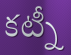
కట్నీ